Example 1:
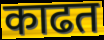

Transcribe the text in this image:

काढत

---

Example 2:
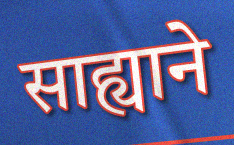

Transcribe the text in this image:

साह्याने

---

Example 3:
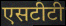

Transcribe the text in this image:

एसटीटी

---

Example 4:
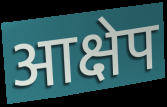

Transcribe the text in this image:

आक्षेप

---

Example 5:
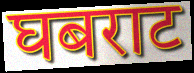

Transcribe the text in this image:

घबराट